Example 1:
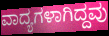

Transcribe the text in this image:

ವಾದ್ಯಗಳಾಗಿದ್ದವು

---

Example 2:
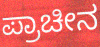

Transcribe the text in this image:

ಪ್ರಾಚೀನ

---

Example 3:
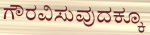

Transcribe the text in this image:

ಗೌರವಿಸುವುದಕ್ಕೂ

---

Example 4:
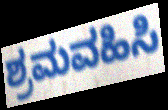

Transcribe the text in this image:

ಶ್ರಮವಹಿಸಿ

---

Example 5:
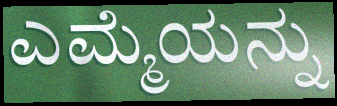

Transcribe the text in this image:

ಎಮ್ಮೆಯನ್ನು